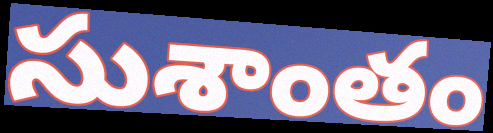
సుశాంతం